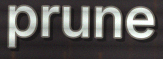
prune